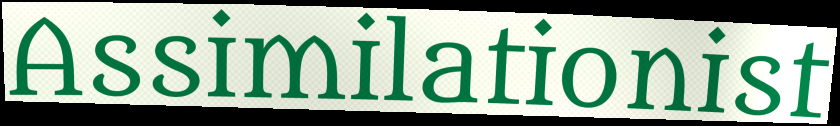
Assimilationist